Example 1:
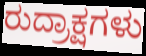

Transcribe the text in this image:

ರುದ್ರಾಕ್ಷಗಳು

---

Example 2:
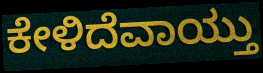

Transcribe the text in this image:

ಕೇಳಿದೆವಾಯ್ತು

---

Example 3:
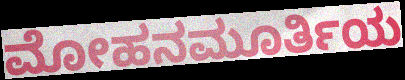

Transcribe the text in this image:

ಮೋಹನಮೂರ್ತಿಯ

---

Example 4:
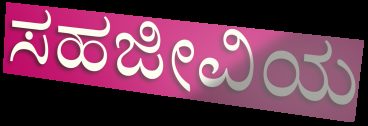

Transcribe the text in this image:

ಸಹಜೀವಿಯ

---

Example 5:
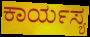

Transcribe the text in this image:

ಕಾರ್ಯಸ್ಯ